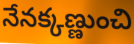
నేనక్కణ్ణుంచి